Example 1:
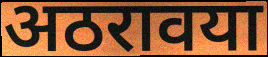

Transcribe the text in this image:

अठरावया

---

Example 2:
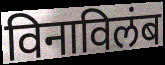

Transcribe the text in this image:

विनाविलंब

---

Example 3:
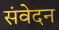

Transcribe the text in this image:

संवेदन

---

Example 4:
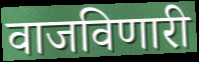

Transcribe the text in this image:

वाजविणारी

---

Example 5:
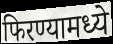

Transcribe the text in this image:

फिरण्यामध्ये